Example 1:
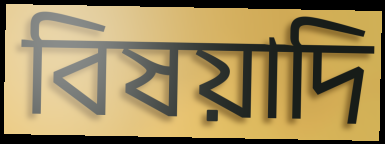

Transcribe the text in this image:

বিষয়াদি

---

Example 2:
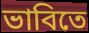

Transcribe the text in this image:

ভাবিতে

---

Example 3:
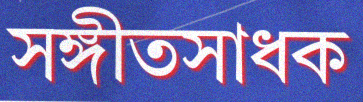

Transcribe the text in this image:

সঙ্গীতসাধক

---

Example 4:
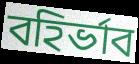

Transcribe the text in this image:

বহির্ভাব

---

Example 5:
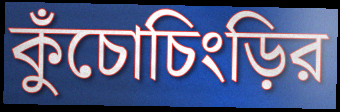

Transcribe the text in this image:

কুঁচোচিংড়ির